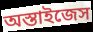
অস্তাইজেস